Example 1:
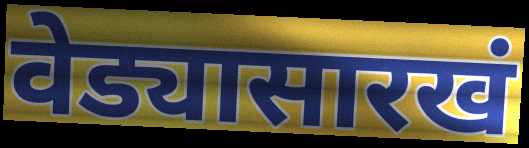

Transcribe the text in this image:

वेड्यासारखं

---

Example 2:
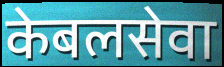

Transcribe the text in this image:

केबलसेवा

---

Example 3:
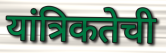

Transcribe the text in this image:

यांत्रिकतेची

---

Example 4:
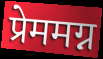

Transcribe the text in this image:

प्रेममग्न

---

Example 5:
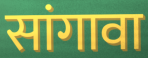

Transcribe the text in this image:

सांगावा